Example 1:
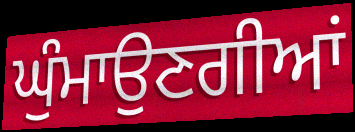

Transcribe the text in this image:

ਘੁੰਮਾਉਣਗੀਆਂ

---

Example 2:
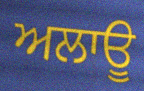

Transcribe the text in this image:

ਅਲਾਊ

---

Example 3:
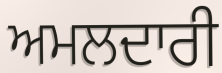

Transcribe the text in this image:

ਅਮਲਦਾਰੀ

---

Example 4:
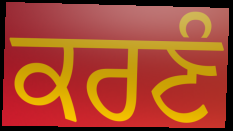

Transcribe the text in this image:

ਕਰਣੰ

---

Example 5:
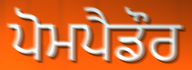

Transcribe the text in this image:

ਪੋਮਪੈਡੌਰ